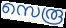
സെരൂ